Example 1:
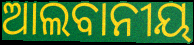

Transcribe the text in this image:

ଆଲବାନୀୟ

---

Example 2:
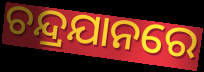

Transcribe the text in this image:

ଚନ୍ଦ୍ରଯାନରେ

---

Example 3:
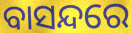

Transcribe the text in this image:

ବାସନ୍ଦରେ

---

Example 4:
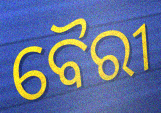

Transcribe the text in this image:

ବୈରୀ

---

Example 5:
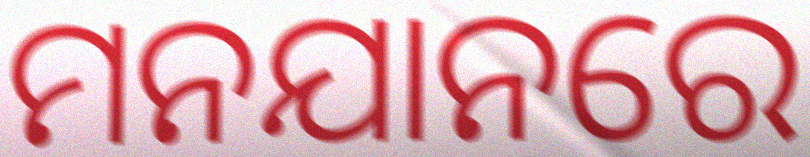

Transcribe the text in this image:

ମନଯାନରେ